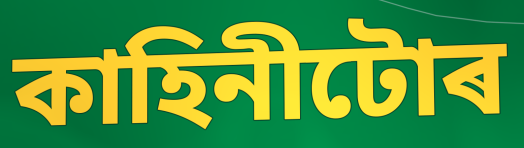
কাহিনীটোৰ